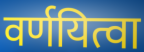
वर्णयित्वा